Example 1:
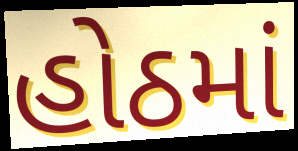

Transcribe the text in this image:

હોઠમાં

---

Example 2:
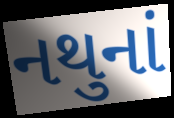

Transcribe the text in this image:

નથુનાં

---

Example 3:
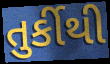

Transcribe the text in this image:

તુર્કીથી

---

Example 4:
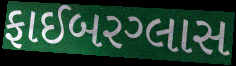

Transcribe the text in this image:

ફાઈબરગ્લાસ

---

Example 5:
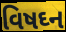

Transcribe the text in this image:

વિષઘ્ન